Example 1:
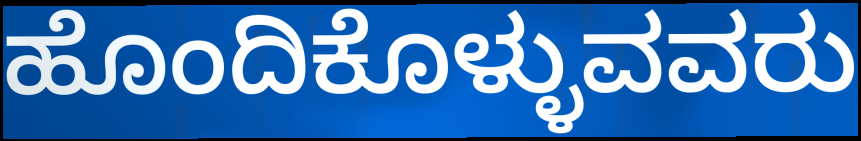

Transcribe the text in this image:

ಹೊಂದಿಕೊಳ್ಳುವವರು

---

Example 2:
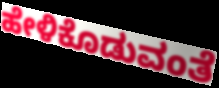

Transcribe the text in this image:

ಹೇಳಿಕೊಡುವಂತೆ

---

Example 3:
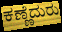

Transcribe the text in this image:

ಕಣ್ಣೆದುರು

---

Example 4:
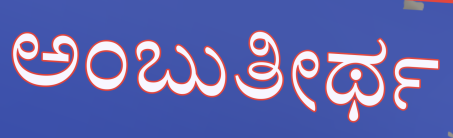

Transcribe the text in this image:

ಅಂಬುತೀರ್ಥ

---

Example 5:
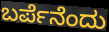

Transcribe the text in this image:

ಬರ್ಪೆನೆಂದು